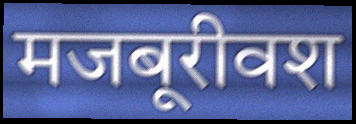
मजबूरीवश